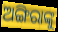
ଅଙ୍ଗିରାଙ୍କୁ